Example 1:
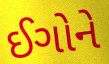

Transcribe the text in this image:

ઈગોને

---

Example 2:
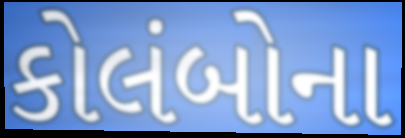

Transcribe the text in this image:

કોલંબોના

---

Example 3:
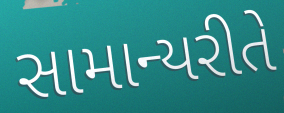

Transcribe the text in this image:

સામાન્યરીતે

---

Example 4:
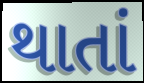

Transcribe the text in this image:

થાતાં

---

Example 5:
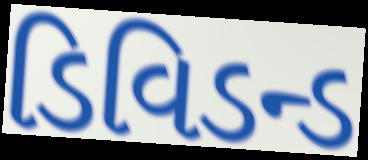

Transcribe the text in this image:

ડિવિડન્ડ